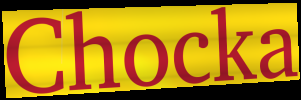
Chocka